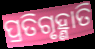
ପ୍ରତିଗୃହ୍ଣାତି